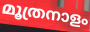
മൂത്രനാളം